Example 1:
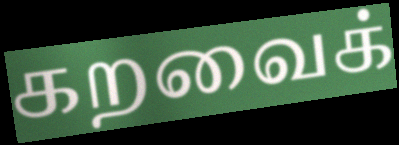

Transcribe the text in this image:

கறவைக்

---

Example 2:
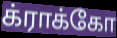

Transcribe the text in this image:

க்ராக்கோ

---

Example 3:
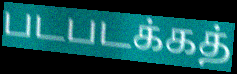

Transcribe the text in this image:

படபடக்கத்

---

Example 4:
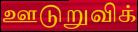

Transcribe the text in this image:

ஊடுறுவிக்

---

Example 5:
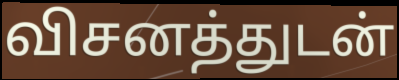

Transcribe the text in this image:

விசனத்துடன்